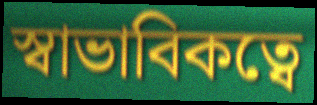
স্বাভাবিকত্বে